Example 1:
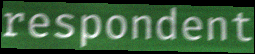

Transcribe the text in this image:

respondent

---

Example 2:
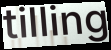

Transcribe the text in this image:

tilling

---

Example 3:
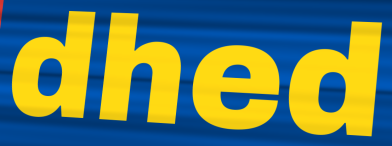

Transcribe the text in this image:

dhed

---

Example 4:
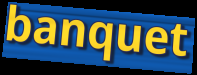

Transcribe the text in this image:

banquet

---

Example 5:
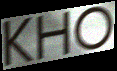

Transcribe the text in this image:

KHO